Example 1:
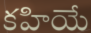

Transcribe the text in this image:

కహియే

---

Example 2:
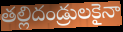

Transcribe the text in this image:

తల్లిదండ్రులకైనా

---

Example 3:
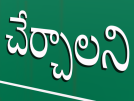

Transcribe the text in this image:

చేర్చాలని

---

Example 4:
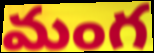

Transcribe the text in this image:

మంగ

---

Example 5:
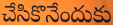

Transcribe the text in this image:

చేసికొనేందుకు